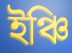
ইঞ্চি